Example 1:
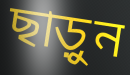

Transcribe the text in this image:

ছাড়ুন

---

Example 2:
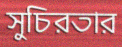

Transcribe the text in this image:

সুচিরতার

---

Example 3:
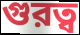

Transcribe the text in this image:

গুরত্ব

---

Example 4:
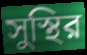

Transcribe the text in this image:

সুস্থির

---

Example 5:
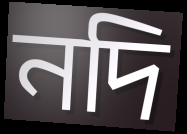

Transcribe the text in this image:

নদি